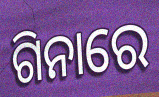
ଗିନାରେ